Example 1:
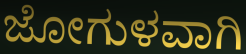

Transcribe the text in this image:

ಜೋಗುಳವಾಗಿ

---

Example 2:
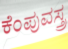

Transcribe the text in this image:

ಕೆಂಪುವಸ್ತ್ರ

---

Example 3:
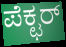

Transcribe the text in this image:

ಪೆಕ್ಟರ್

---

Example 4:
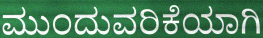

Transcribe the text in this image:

ಮುಂದುವರಿಕೆಯಾಗಿ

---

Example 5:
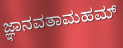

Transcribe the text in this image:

ಜ್ಞಾನವತಾಮಹಮ್